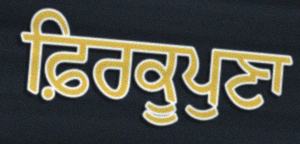
ਫ਼ਿਰਕੂਪੁਣਾ